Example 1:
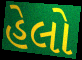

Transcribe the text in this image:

હેલો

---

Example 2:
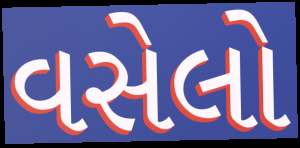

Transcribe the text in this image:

વસેલો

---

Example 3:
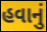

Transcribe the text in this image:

હવાનું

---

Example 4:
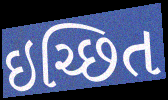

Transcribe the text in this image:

ઇચ્છિત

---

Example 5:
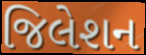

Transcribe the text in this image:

જિલેશન